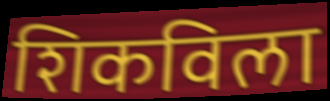
शिकविला